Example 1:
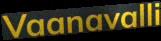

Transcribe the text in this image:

Vaanavalli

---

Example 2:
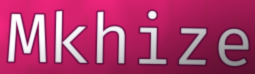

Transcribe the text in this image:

Mkhize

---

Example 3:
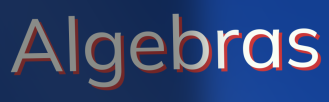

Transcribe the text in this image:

Algebras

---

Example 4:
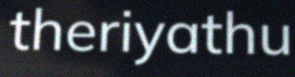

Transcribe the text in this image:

theriyathu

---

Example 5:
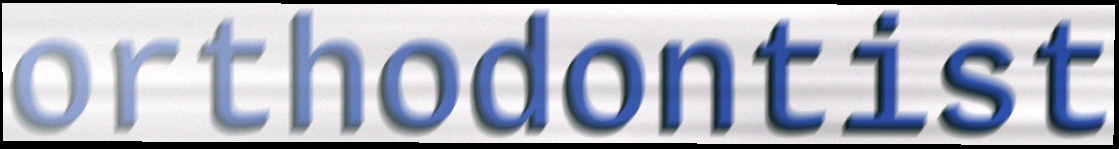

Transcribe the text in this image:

orthodontist